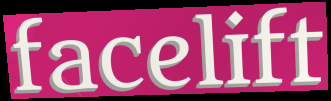
facelift